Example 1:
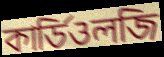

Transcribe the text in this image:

কার্ডিওলজি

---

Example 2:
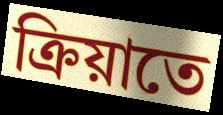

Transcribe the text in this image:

ক্রিয়াতে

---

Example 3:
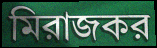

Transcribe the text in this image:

মিরাজকর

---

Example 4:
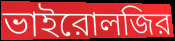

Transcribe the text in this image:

ভাইরোলজির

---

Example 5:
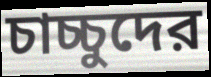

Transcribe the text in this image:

চাচ্চুদের